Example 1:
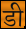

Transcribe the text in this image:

डी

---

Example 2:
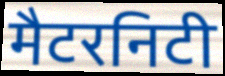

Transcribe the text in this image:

मैटरनिटी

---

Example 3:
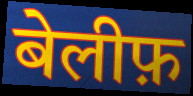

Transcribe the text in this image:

बेलीफ़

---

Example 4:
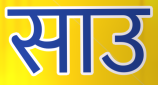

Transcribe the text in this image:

साउ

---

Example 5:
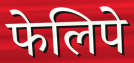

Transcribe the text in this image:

फेलिपे